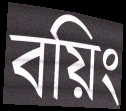
বয়িং